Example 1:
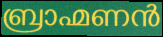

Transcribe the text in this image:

ബ്രാഹ്മണൻ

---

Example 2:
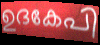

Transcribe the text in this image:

ഉദകേപി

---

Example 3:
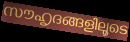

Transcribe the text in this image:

സൗഹൃദങ്ങളിലൂടെ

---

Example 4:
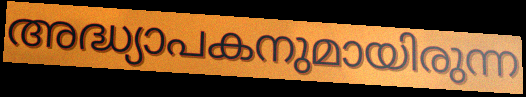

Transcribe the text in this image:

അദ്ധ്യാപകനുമായിരുന്ന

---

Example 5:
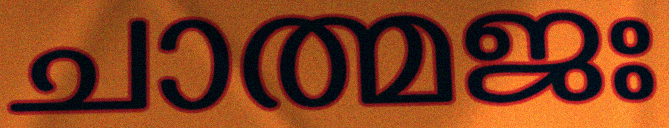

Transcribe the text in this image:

ചാത്മജഃ